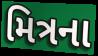
મિત્રના